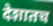
देशातच